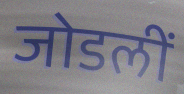
जोडलीं